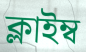
ক্লাইম্ব